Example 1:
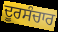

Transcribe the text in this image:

ਦੂਰਸੰਚਾਰ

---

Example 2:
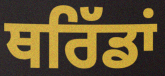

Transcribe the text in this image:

ਥਰਿੱਡਾਂ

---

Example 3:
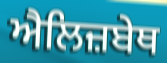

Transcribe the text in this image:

ਐਲਿਜ਼ਬੇਥ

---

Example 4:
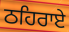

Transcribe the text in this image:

ਠਹਿਰਾਏ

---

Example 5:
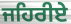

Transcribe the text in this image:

ਜਹਿਰੀਏ